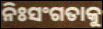
ନିଃସଂଗତାକୁ